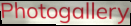
Photogallery